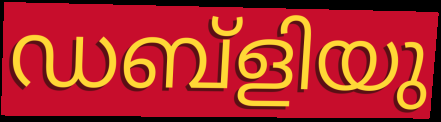
ഡബ്ളിയു